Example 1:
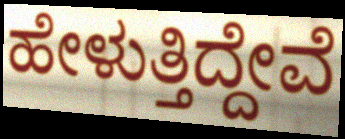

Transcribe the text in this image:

ಹೇಳುತ್ತಿದ್ದೇವೆ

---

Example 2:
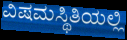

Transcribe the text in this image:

ವಿಷಮಸ್ಥಿತಿಯಲ್ಲಿ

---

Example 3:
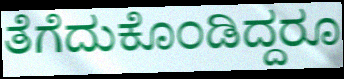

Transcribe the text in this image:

ತೆಗೆದುಕೊಂಡಿದ್ದರೂ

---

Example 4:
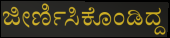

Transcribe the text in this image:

ಜೀರ್ಣಿಸಿಕೊಂಡಿದ್ದ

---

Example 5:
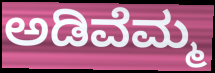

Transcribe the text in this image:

ಅಡಿವೆಮ್ಮ